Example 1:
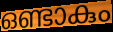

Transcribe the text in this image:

ഒണ്ടാകും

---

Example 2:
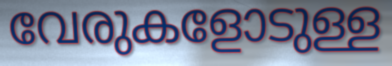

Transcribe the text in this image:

വേരുകളോടുള്ള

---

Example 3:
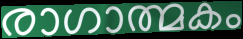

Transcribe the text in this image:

രാഗാത്മകം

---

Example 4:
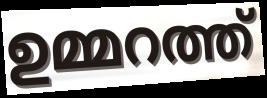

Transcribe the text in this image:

ഉമ്മറത്ത്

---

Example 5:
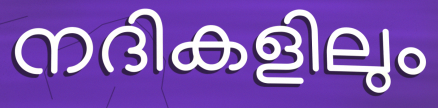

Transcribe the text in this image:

നദികളിലും